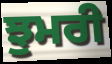
ਝੁਮਰੀ